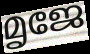
മൃജേ